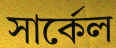
সার্কেল